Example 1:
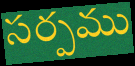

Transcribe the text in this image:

సర్పము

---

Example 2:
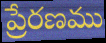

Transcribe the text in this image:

ప్రేరణము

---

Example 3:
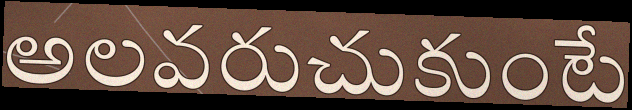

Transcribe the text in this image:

అలవరుచుకుంటే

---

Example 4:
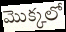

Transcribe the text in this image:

మొక్కలో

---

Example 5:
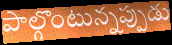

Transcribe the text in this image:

పాల్గొంటున్నప్పుడు